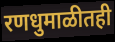
रणधुमाळीतही